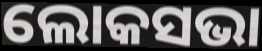
ଲୋକସଭା